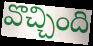
వొచ్చింది